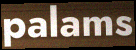
palams